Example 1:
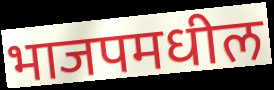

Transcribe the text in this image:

भाजपमधील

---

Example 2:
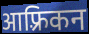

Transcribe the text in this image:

आफ़्रिकन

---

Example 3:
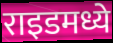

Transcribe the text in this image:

राइडमध्ये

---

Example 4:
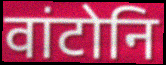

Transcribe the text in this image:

वांटोनि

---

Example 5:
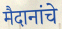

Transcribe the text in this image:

मैदानांचे